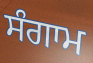
ਸੰਗਾਮ